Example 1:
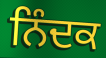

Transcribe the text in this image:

ਨਿੰਦਕ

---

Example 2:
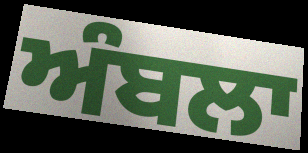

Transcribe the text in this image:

ਅੰਬਲਾ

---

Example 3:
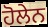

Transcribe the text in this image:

ਹੋਲੇਨ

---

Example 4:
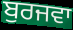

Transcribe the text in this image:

ਬੁਰਜਵਾ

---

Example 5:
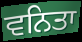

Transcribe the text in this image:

ਵਨਿਤਾ